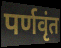
पर्णवृंत